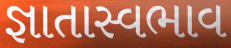
જ્ઞાતાસ્વભાવ